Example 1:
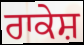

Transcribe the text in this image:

ਰਾਕੇਸ਼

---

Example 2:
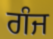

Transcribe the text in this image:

ਗੰਜ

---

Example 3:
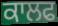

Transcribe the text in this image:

ਕਾਲਫ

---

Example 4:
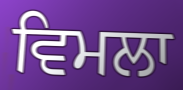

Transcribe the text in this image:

ਵਿਮਲਾ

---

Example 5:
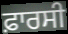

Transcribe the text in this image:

ਫ਼ਾਰਸੀ